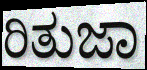
ರಿತುಜಾ